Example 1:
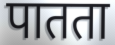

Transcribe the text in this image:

पातता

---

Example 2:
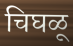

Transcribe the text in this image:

चिघळू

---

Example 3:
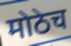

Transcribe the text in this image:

मोठेच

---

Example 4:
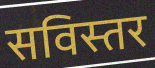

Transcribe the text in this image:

सविस्तर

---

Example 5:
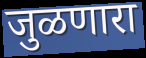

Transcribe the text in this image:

जुळणारा